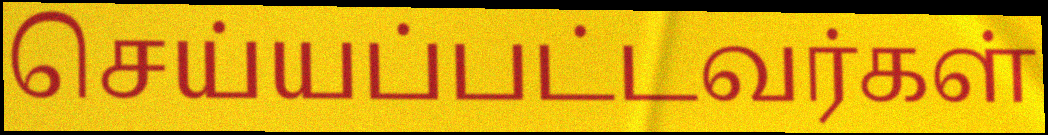
செய்யப்பட்டவர்கள்